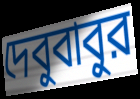
দেবুবাবুর